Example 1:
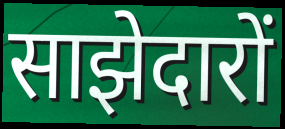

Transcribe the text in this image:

साझेदारों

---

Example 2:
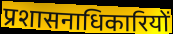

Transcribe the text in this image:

प्रशासनाधिकारियों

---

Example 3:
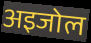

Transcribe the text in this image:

अइजोल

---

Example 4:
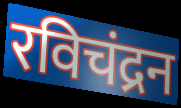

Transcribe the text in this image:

रविचंद्रन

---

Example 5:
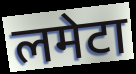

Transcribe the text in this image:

लमेटा